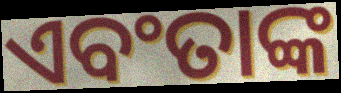
ଏବଂତାଙ୍କ